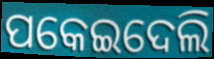
ପକେଇଦେଲି